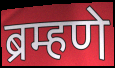
ब्रम्हणे